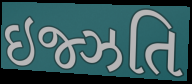
ઇજ્ઝતિ